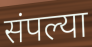
संपल्या